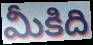
మీకిది